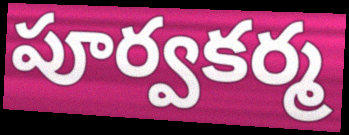
పూర్వకర్మ